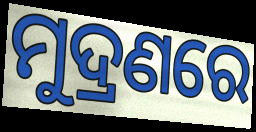
ମୁଦ୍ରଣରେ